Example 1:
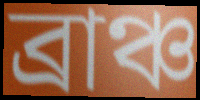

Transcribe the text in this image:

ব্রাঞ্চ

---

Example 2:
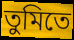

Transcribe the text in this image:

তুমিতে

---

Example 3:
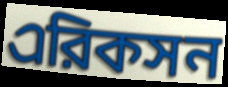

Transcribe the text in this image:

এরিকসন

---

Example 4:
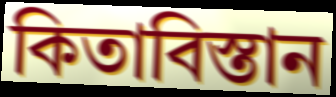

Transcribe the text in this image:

কিতাবিস্তান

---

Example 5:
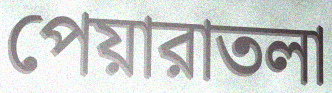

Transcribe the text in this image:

পেয়ারাতলা